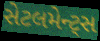
સેટલમેન્ટ્સ